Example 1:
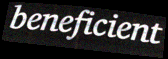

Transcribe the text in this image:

beneficient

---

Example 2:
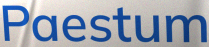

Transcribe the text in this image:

Paestum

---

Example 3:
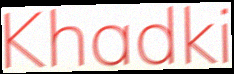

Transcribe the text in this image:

Khadki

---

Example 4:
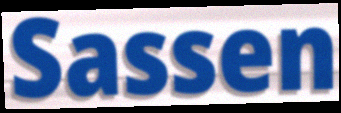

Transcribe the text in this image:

Sassen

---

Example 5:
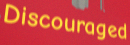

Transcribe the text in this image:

Discouraged